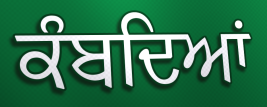
ਕੰਬਦਿਆਂ